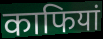
काफियां